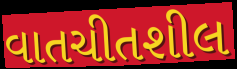
વાતચીતશીલ